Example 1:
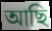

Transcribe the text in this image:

আছি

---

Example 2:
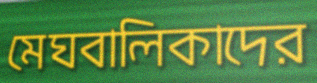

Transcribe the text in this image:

মেঘবালিকাদের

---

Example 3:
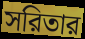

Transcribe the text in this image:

সরিতার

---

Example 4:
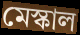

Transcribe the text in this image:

মেস্কাল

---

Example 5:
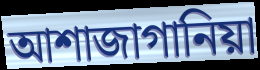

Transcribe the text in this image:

আশাজাগানিয়া